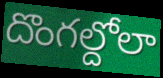
దొంగల్దోలా